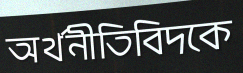
অর্থনীতিবিদকে